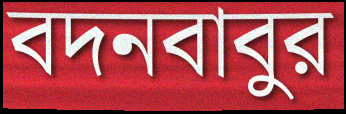
বদনবাবুর